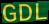
GDL